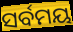
ସର୍ବମୟ